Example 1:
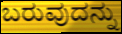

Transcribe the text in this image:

ಬರುವುದನ್ನು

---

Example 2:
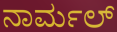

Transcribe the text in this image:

ನಾರ್ಮಲ್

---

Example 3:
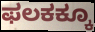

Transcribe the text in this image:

ಫಲಕಕ್ಕೂ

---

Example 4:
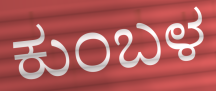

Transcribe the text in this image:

ಕುಂಬಳ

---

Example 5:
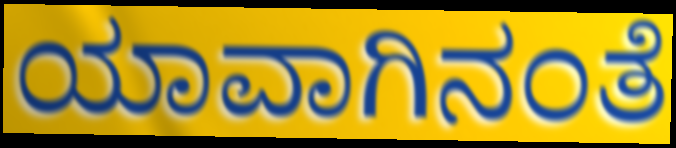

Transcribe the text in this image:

ಯಾವಾಗಿನಂತೆ